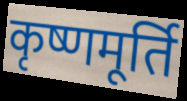
कृष्णमूर्ति